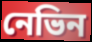
নেভিন